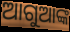
ଆଗୁଆଙ୍କ